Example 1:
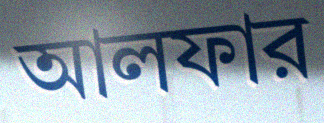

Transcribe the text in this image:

আলফার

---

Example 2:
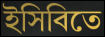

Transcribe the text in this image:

ইসিবিতে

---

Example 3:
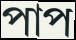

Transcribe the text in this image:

পাপ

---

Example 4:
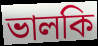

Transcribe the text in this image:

ভালকি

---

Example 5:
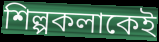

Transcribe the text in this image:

শিল্পকলাকেই